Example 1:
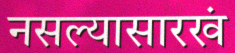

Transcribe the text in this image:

नसल्यासारखं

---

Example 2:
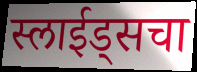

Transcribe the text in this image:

स्लाईड्सचा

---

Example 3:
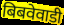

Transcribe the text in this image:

बिबवेवाडी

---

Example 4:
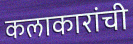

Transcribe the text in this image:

कलाकारांची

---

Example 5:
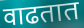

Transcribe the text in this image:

वाढतात